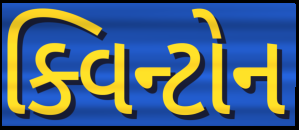
ક્વિન્ટોન